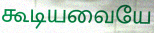
கூடியவையே